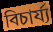
বিচাৰ্য্য